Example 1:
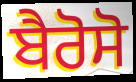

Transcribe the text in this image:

ਬੈਰੋਸੋ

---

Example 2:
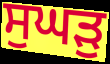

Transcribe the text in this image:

ਸੁਘੜੁ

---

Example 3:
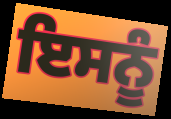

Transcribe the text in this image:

ਇਸਨੂੰ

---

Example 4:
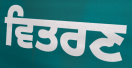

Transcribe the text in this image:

ਵਿਤਰਣ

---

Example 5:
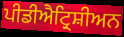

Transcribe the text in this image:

ਪੀਡੀਐਟ੍ਰਿਸ਼ੀਅਨ